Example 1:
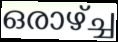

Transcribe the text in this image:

ഒരാഴ്ച്ച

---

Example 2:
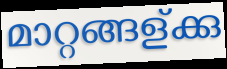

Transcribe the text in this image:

മാറ്റങ്ങള്ക്കു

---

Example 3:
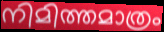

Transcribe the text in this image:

നിമിത്തമാത്രം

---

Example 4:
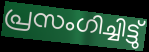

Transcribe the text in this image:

പ്രസംഗിച്ചിട്ടു്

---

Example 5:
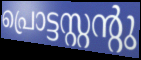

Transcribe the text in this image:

പ്രൊട്ടസ്റ്റന്റു